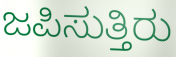
ಜಪಿಸುತ್ತಿರು